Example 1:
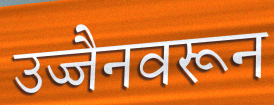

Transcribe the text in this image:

उज्जैनवरून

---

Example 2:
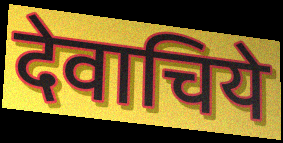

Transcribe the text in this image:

देवाचिये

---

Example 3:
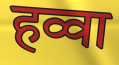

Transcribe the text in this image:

हव्वा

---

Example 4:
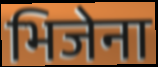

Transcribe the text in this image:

भिजेना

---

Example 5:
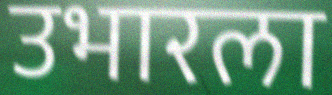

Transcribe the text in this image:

उभारला